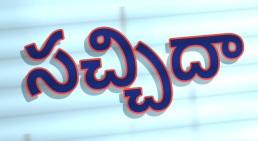
సచ్చిదా